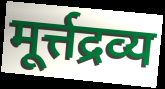
मूर्त्तद्रव्य